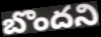
బొందని